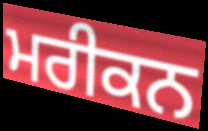
ਮਰੀਕਨ